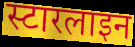
स्टारलाइन